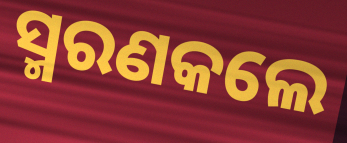
ସ୍ମରଣକଲେ